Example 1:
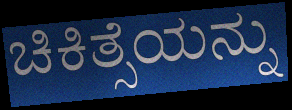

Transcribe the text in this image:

ಚಿಕಿತ್ಸೆಯನ್ನು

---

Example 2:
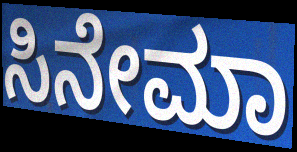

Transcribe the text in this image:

ಸಿನೇಮಾ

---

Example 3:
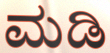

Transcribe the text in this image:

ಮಡಿ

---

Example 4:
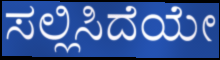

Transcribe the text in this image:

ಸಲ್ಲಿಸಿದೆಯೇ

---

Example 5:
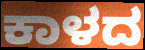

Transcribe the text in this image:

ಕಾಳದ